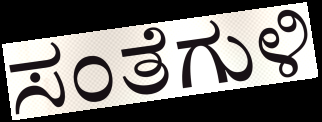
ಸಂತೆಗುಳಿ